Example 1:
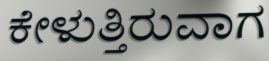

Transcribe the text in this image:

ಕೇಳುತ್ತಿರುವಾಗ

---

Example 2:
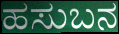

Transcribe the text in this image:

ಹಸುಬನ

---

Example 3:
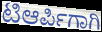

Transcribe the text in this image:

ಟಿಆರ್ಪಿಗಾಗಿ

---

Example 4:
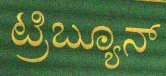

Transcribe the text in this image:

ಟ್ರಿಬ್ಯೂನ್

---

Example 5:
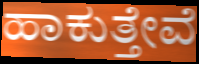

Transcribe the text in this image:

ಹಾಕುತ್ತೇವೆ